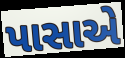
પાસાએ